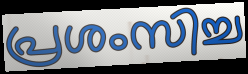
പ്രശംസിച്ച